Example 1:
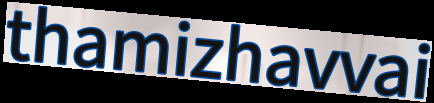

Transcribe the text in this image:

thamizhavvai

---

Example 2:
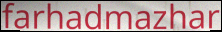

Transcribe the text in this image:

farhadmazhar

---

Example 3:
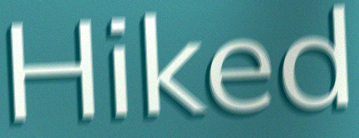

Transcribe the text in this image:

Hiked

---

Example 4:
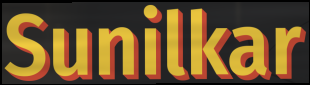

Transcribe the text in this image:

Sunilkar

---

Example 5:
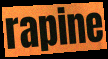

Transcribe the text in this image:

rapine